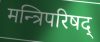
मन्त्रिपरिषद्